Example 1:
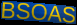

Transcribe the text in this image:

BSOAS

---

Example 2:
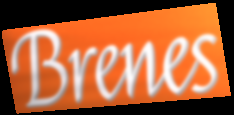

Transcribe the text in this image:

Brenes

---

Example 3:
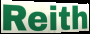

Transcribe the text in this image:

Reith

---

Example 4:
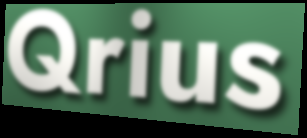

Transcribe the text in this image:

Qrius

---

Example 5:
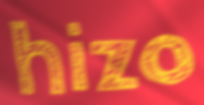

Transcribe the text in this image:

hizo